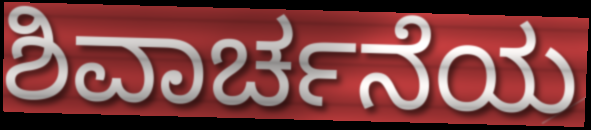
ಶಿವಾರ್ಚನೆಯ